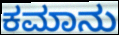
ಕಮಾನು